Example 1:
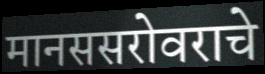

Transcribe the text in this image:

मानससरोवराचे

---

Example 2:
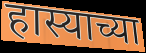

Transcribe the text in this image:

हास्याच्या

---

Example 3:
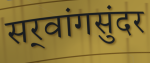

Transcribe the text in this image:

सर्वांगसुंदर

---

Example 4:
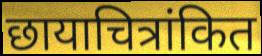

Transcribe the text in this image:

छायाचित्रांकित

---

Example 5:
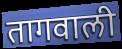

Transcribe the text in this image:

तागवाली